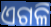
ଏଗଳି